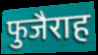
फुजैराह